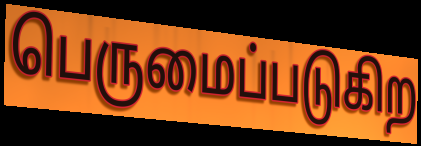
பெருமைப்படுகிற